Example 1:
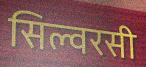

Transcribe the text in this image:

सिल्वरसी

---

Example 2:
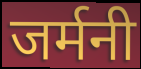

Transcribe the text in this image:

जर्मनी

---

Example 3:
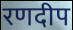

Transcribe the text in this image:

रणदीप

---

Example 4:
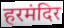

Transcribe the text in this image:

हरमंदिर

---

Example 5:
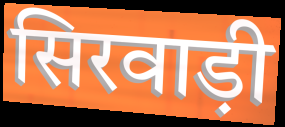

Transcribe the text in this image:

सिरवाड़ी